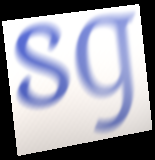
sg